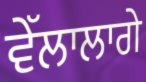
ਵੇੱਲਾਲਾਗੇ